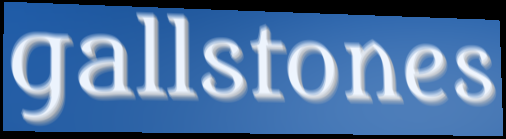
gallstones